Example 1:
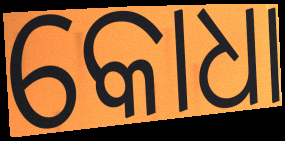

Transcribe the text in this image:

କୋଧା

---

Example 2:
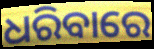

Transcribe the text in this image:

ଧରିବାରେ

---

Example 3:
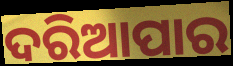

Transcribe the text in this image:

ଦରିଆପାର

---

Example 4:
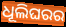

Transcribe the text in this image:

ଧୂଲିଘରର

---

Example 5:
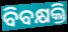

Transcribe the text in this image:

ବିବକ୍ଷକ୍ତି